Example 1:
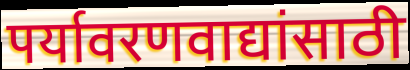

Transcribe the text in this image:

पर्यावरणवाद्यांसाठी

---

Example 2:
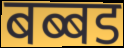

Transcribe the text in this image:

बब्बड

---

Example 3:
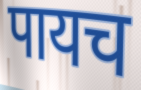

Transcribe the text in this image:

पायच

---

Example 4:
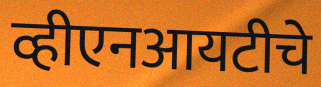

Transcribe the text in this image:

व्हीएनआयटीचे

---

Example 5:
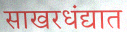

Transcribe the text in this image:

साखरधंद्यात